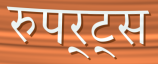
रुपर्ट्स